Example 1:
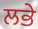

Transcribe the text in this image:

ਲਭੇ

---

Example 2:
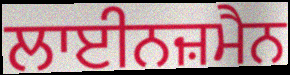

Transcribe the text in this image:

ਲਾਈਨਜ਼ਮੈਨ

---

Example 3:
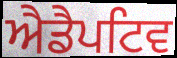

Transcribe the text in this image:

ਐਡੈਪਟਿਵ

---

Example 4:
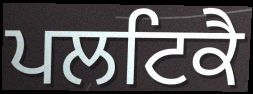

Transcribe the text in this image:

ਪਲਟਿਕੈ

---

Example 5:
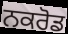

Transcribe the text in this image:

ਨਕਰੋਡ